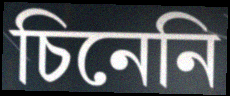
চিনেনি